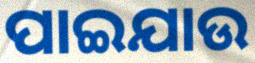
ପାଇଯାଉ